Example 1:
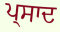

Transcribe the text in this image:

ਪ੍ਸਾਦ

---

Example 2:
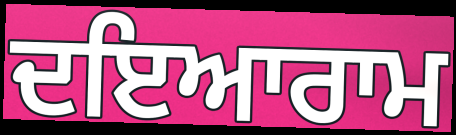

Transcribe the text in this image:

ਦਇਆਰਾਮ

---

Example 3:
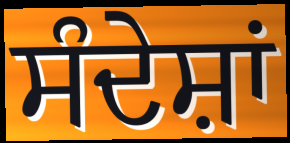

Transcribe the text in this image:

ਸੰਦੇਸ਼ਾਂ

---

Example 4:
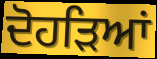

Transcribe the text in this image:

ਦੋਹੜਿਆਂ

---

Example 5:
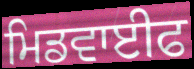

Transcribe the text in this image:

ਮਿਡਵਾਈਫ